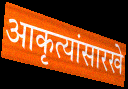
आकृत्यांसारखे